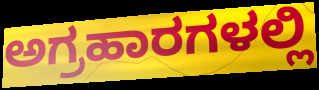
ಅಗ್ರಹಾರಗಳಲ್ಲಿ